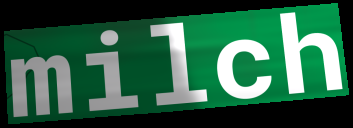
milch